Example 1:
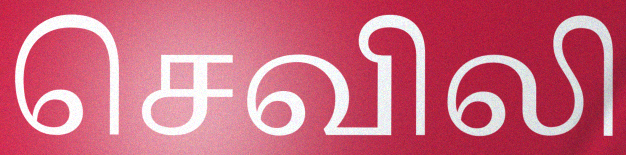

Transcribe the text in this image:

செவிலி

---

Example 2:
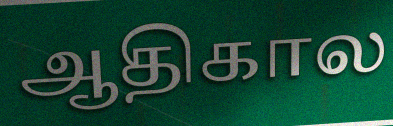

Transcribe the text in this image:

ஆதிகால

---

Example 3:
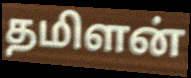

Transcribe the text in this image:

தமிளன்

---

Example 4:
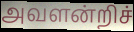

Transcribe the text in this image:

அவளன்றிச்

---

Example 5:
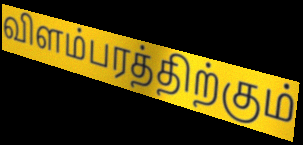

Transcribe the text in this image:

விளம்பரத்திற்கும்